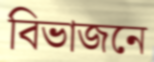
বিভাজনে